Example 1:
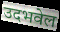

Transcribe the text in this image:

उदभवेल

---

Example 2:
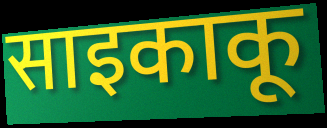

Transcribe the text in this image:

साइकाकू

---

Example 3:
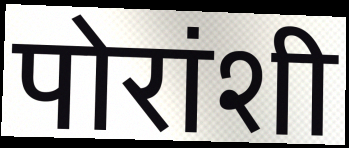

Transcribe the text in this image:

पोरांशी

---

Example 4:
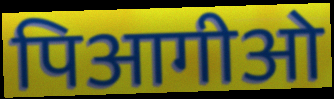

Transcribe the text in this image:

पिआगीओ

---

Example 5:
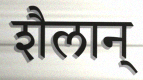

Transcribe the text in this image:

शैलान्